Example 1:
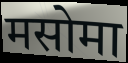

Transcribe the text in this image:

मसोमा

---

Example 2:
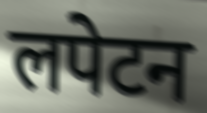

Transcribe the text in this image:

लपेटन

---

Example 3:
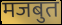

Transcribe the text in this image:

मजबुत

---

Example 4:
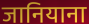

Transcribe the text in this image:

जानियाना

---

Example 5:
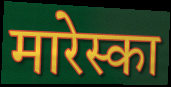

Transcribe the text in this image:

मारेस्का